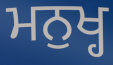
ਮਨੁਖ੍ਹ